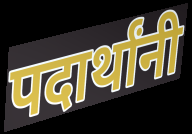
पदार्थांनी